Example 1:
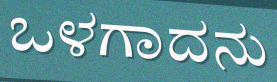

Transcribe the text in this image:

ಒಳಗಾದನು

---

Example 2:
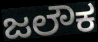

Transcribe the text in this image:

ಜಲೌಕ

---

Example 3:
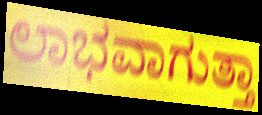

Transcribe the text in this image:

ಲಾಭವಾಗುತ್ತಾ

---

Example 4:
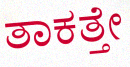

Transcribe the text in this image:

ತಾಕತ್ತೇ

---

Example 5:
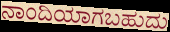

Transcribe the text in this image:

ನಾಂದಿಯಾಗಬಹುದು